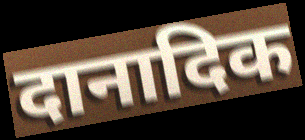
दानादिक